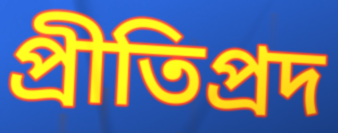
প্রীতিপ্রদ